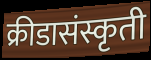
क्रीडासंस्कृती